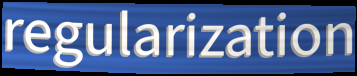
regularization